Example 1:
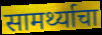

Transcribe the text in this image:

सामर्थ्याचा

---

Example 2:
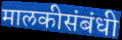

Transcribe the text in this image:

मालकीसंबंधी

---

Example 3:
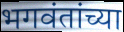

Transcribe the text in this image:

भगवंतांच्या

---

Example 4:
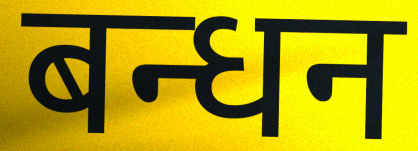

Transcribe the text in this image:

बन्धन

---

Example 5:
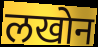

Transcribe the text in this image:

लखोन